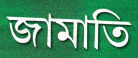
জামাতি